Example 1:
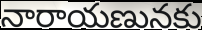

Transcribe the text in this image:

నారాయణునకు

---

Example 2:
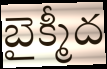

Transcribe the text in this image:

బైక్మీద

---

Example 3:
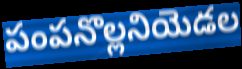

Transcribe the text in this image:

పంపనొల్లనియెడల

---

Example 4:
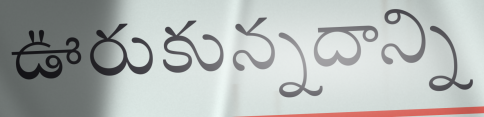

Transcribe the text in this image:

ఊరుకున్నదాన్ని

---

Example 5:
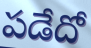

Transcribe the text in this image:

పడేదో